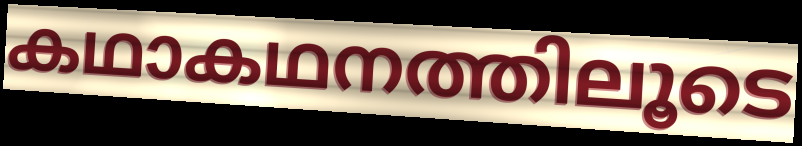
കഥാകഥനത്തിലൂടെ